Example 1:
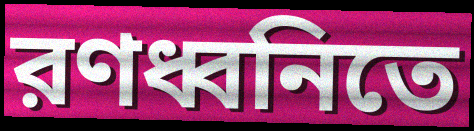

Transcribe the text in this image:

রণধ্বনিতে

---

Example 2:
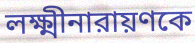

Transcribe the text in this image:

লক্ষ্মীনারায়ণকে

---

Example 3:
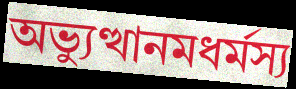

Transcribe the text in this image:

অভ্যুত্থানমধর্মস্য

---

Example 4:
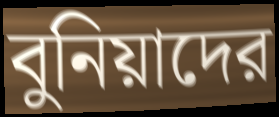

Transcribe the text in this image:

বুনিয়াদের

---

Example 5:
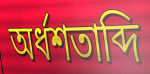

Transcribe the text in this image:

অর্ধশতাব্দি